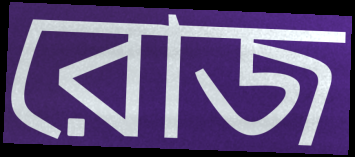
রোজ